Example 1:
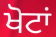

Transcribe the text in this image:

ਖੋਟਾਂ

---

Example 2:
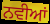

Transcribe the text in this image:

ਨਵੀਆਂ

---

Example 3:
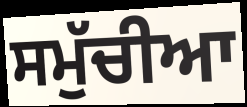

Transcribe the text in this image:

ਸਮੁੱਚੀਆ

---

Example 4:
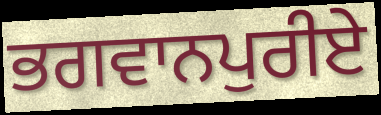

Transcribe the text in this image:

ਭਗਵਾਨਪੁਰੀਏ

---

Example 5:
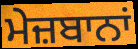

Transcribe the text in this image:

ਮੇਜ਼ਬਾਨਾਂ